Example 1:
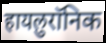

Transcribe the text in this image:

हायलुरॉनिक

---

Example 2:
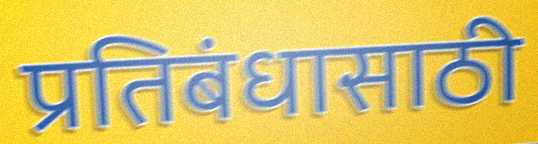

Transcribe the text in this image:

प्रतिबंधासाठी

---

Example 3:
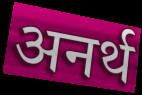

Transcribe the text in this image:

अनर्थ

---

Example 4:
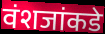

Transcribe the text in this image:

वंशजांकडे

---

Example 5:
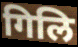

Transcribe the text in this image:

गिलि